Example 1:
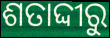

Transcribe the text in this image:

ଶତାଦ୍ଦୀରୁ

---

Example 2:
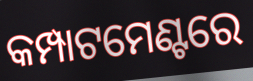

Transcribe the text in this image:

କମ୍ପାଟମେଣ୍ଟରେ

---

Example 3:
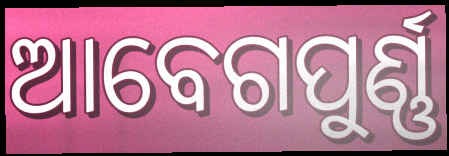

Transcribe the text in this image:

ଆବେଗପୁର୍ଣ୍ଣ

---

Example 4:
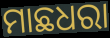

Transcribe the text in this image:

ମାଛଧରା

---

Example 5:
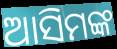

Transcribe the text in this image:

ଆସିମଙ୍କ